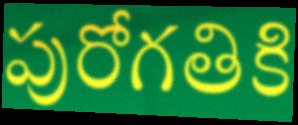
పురోగతికి